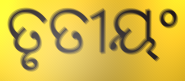
ତୃତୀୟଂ